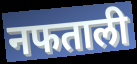
नफताली